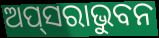
ଅପ୍‍ସରାଭୁବନ